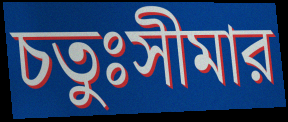
চতুঃসীমার